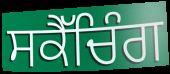
ਸਕੈੱਚਿੰਗ